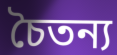
চৈতন্য